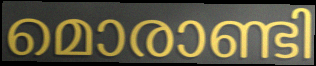
മൊരാണ്ടി